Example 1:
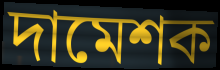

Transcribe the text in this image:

দামেশক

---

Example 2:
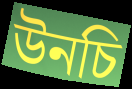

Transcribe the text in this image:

উনচি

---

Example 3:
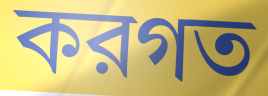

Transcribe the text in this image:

করগত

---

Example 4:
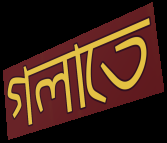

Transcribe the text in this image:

গলাতে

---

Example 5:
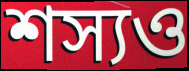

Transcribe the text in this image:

শস্যও